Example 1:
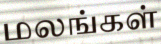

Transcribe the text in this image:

மலங்கள்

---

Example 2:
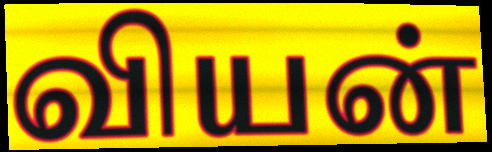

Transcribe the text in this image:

வியன்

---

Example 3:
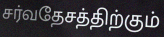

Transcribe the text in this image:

சர்வதேசத்திற்கும்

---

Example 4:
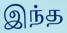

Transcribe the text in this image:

இந்த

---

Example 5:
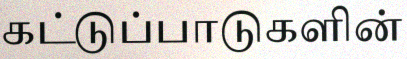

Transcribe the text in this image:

கட்டுப்பாடுகளின்